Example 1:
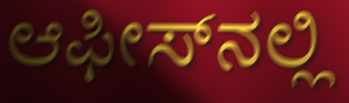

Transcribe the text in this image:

ಆಫೀಸ್‌ನಲ್ಲಿ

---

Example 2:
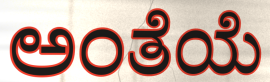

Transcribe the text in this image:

ಅಂತೆಯೆ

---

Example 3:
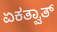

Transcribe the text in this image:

ಏಕತ್ವಾತ್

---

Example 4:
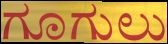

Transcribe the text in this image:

ಗೂಗುಲು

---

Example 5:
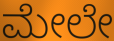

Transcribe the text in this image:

ಮೇಲೇ